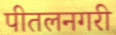
पीतलनगरी